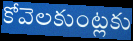
కోవెలకుంట్లకు